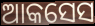
ଆକସେସ